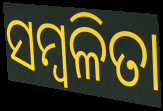
ସମ୍ବଳିତା